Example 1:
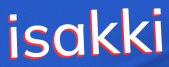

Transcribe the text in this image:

isakki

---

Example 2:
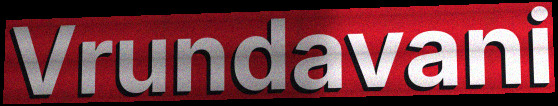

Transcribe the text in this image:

Vrundavani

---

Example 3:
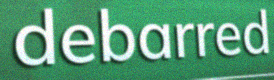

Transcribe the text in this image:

debarred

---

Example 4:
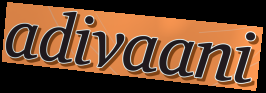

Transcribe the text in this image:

adivaani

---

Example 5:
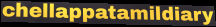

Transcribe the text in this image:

chellappatamildiary